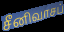
சீனிவாசப்